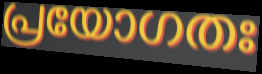
പ്രയോഗതഃ